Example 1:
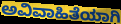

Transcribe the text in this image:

ಅವಿವಾಹಿತೆಯಾಗಿ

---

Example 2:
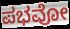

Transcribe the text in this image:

ಪಭವೋ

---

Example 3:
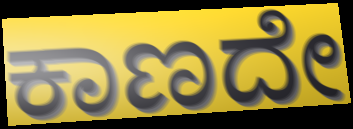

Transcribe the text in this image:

ಕಾಣದೇ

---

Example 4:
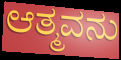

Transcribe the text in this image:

ಆತ್ಮವನು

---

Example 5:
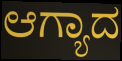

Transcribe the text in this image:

ಆಗ್ಯಾದ